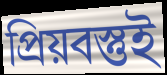
প্রিয়বস্তুই